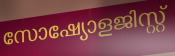
സോഷ്യോളജിസ്റ്റ്